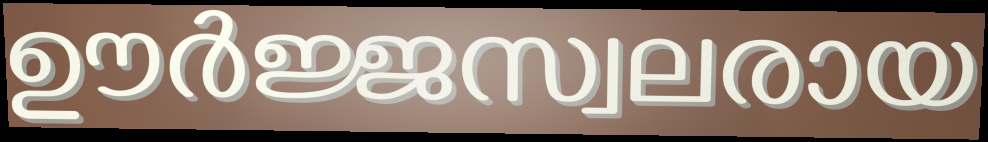
ഊർജ്ജസ്വലരായ